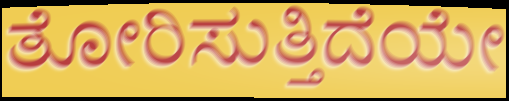
ತೋರಿಸುತ್ತಿದೆಯೇ